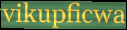
vikupficwa